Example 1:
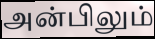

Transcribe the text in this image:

அன்பிலும்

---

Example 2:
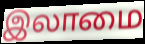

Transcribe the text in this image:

இலாமை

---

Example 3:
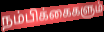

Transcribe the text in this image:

நம்பிக்கைகளும்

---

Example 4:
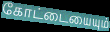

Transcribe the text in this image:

கோட்டையையும்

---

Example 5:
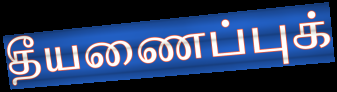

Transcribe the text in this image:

தீயணைப்புக்